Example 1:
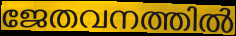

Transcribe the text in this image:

ജേതവനത്തിൽ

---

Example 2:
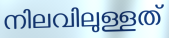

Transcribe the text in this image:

നിലവിലുള്ളത്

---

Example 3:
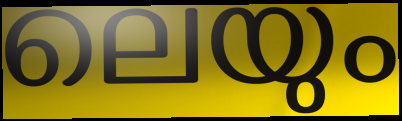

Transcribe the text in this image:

ലെയും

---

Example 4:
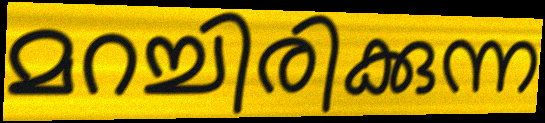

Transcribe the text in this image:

മറച്ചിരിക്കുന്ന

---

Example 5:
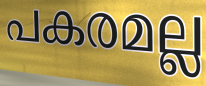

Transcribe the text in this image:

പകരമല്ല